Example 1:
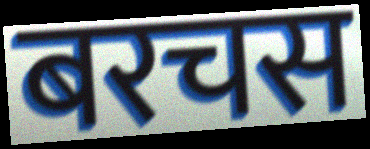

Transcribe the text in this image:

बरचस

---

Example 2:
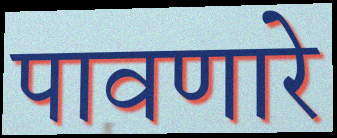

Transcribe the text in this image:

पावणारे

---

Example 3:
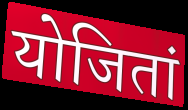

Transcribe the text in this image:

योजितां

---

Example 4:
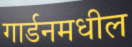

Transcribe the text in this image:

गार्डनमधील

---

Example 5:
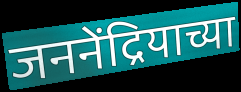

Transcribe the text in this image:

जननेंद्रियाच्या